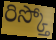
రిస్క్తో